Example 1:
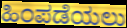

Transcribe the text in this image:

ಹಿಂಪಡೆಯಲು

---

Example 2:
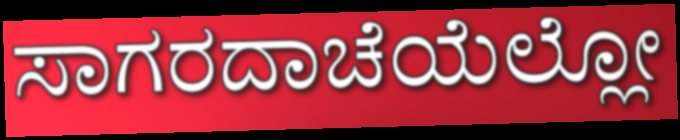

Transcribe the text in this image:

ಸಾಗರದಾಚೆಯೆಲ್ಲೋ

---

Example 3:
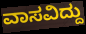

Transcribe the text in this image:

ವಾಸವಿದ್ದು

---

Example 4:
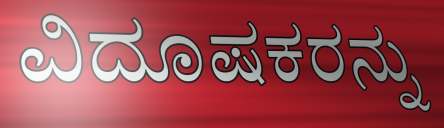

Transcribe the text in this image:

ವಿದೂಷಕರನ್ನು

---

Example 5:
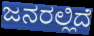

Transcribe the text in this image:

ಜನರಲ್ಲಿದೆ